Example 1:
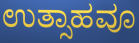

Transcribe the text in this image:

ಉತ್ಸಾಹವೂ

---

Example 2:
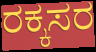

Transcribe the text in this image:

ರಕ್ಕಸರ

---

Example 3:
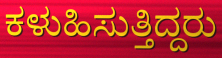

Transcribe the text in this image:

ಕಳುಹಿಸುತ್ತಿದ್ದರು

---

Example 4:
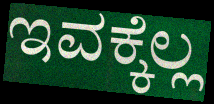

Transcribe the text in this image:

ಇವಕ್ಕೆಲ್ಲ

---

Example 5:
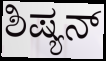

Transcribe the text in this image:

ಶಿಷ್ಯನ್